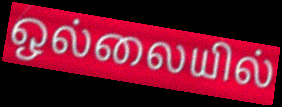
ஒல்லையில்